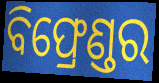
ବିଫ୍ରେଣ୍ଡର